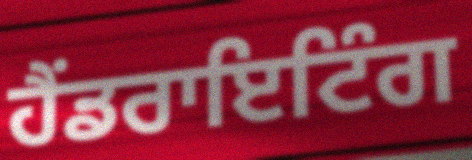
ਹੈਂਡਰਾਇਟਿੰਗ